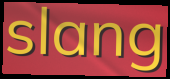
slang